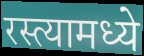
रस्त्यामध्ये